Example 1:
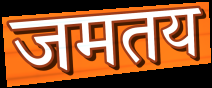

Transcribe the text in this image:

जमतय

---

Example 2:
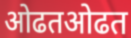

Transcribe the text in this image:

ओढतओढत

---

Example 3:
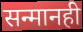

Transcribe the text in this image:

सन्मानही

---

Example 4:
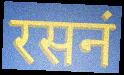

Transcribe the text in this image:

रसनं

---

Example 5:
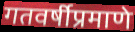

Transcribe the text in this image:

गतवर्षीप्रमाणे